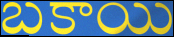
బకాయి